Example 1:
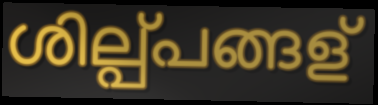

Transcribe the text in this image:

ശില്പ്പങ്ങള്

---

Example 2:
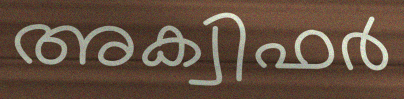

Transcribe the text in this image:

അക്വിഫർ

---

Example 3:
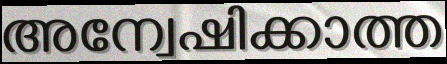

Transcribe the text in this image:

അന്വേഷിക്കാത്ത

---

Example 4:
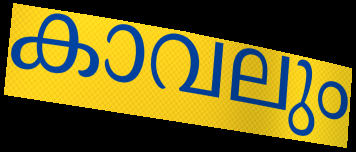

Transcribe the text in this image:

കാവലും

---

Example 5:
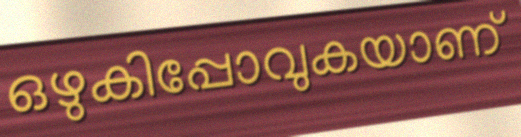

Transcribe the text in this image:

ഒഴുകിപ്പോവുകയാണ്